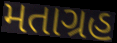
મતાગ્રહ